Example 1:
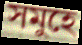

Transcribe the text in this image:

সমুহে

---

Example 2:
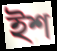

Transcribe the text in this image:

ইশ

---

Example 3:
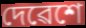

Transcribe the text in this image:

দেৱেশে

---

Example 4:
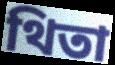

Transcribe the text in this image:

থিতা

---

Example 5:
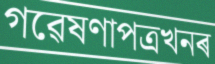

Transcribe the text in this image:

গৱেষণাপত্ৰখনৰ